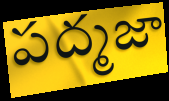
పద్మజా